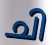
ചി